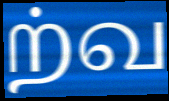
ற்வ